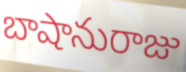
బాషానురాజు